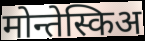
मोन्तेस्किअ